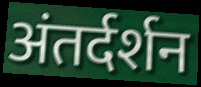
अंतर्दर्शन